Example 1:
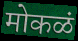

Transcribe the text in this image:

मोकळं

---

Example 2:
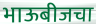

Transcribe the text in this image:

भाऊबीजचा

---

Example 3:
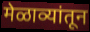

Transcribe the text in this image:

मेळाव्यांतून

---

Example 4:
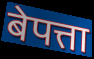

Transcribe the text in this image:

बेपत्ता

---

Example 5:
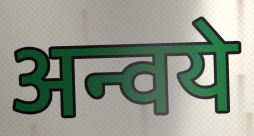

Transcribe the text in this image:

अन्वये